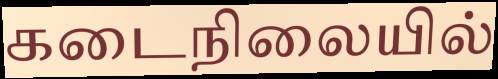
கடைநிலையில்